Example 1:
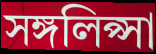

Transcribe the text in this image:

সঙ্গলিপ্সা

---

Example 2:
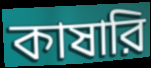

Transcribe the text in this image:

কাষারি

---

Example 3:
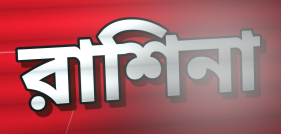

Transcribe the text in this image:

রাশিনা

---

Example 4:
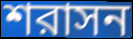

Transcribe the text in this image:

শরাসন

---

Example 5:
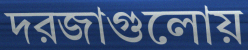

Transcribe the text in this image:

দরজাগুলোয়